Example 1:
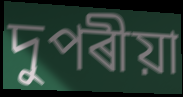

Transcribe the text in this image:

দুপৰীয়া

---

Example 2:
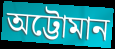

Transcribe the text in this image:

অট্টোমান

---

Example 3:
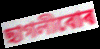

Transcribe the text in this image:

ছাগলীবোৰ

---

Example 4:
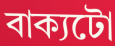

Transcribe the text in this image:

বাক্য়টো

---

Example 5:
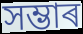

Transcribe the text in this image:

সম্ভাৰ